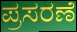
ಪ್ರಸರಣೆ